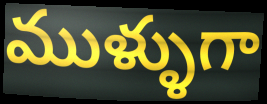
ముళ్ళుగా